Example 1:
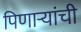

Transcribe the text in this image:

पिणाऱ्यांची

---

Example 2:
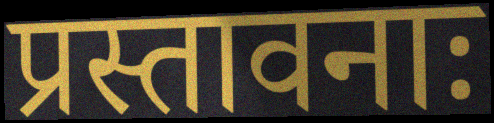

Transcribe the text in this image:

प्रस्तावनाः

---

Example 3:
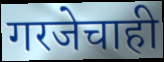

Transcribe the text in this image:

गरजेचाही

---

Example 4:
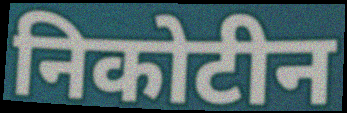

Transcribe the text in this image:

निकोटीन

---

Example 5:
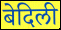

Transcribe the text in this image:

बेदिली